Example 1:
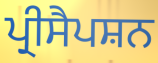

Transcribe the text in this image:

ਪ੍ਰੀਸੈਪਸ਼ਨ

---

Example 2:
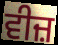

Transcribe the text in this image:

ਵੀਜ਼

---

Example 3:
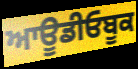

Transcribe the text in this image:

ਆਊਡੀਓਬੂਕ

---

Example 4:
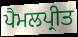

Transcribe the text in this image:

ਪੈਮਲਪ੍ਰੀਤ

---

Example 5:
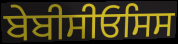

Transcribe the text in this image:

ਬੇਬੀਸੀਓਸਿਸ